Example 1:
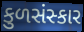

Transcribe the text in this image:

કુળસંસ્કાર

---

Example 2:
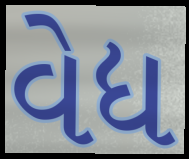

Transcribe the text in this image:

વેદ્ય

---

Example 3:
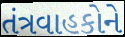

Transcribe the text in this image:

તંત્રવાહકોને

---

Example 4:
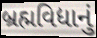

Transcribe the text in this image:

બ્રહ્મવિદ્યાનું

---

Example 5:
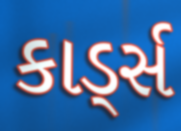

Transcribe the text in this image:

કાર્ડ્સ